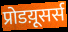
प्रोडय़ूसर्स